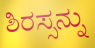
ಶಿರಸ್ಸನ್ನು